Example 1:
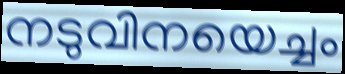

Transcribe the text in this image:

നടുവിനയെച്ചം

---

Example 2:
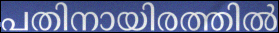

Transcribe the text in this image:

പതിനായിരത്തിൽ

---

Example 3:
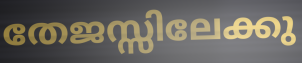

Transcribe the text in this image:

തേജസ്സിലേക്കു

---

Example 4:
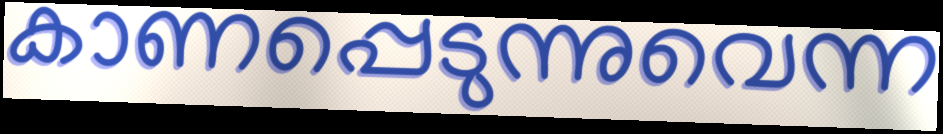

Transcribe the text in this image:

കാണപ്പെടുന്നുവെന്ന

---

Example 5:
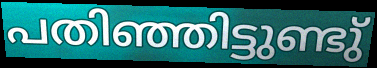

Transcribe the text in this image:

പതിഞ്ഞിട്ടുണ്ടു്